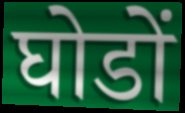
घोडों